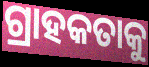
ଗ୍ରାହକତାକୁ